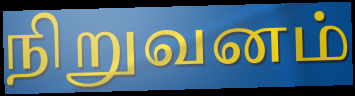
நிறுவனம்